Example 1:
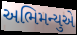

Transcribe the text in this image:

અભિમન્યુએ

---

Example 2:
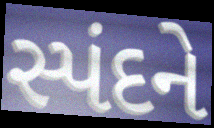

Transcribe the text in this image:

સ્પંદને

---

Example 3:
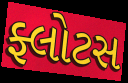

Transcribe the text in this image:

ફ્લોટસ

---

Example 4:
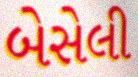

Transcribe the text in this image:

બેસેલી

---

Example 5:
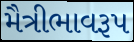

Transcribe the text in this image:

મૈત્રીભાવરૂપ